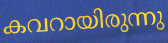
കവറായിരുന്നു